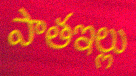
పాతఇల్లు